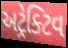
અટ્રેક્ટિવ